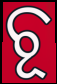
ଚୂ